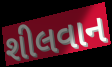
શીલવાન